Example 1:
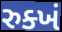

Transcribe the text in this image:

રુક્ખં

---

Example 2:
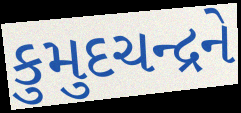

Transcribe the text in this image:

કુમુદચન્દ્રને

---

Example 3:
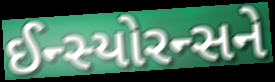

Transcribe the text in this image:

ઈન્સ્યોરન્સને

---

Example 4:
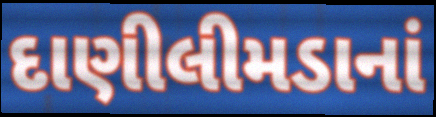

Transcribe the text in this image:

દાણીલીમડાનાં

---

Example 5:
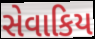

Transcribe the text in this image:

સેવાકિય